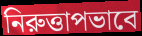
নিরুত্তাপভাবে